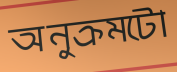
অনুক্ৰমটো